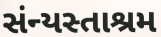
સંન્યસ્તાશ્રમ